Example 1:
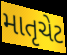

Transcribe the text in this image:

માતૃચેટ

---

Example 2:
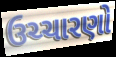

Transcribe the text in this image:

ઉચ્ચારણો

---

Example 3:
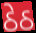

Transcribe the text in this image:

ઠેઠ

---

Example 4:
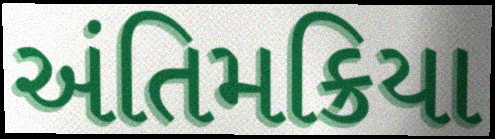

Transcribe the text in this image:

અંતિમક્રિયા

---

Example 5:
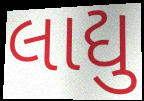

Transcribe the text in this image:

લાદ્યુ